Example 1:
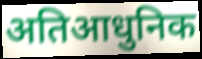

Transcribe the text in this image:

अतिआधुनिक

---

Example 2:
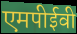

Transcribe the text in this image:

एमपीईवी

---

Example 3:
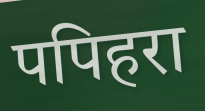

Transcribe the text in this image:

पपिहरा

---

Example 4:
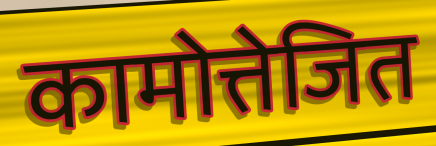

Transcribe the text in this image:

कामोत्तेजित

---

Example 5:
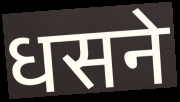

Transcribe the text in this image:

धसने